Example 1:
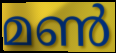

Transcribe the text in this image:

മൺ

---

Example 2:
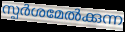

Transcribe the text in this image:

സ്പർശമേൽക്കുന്ന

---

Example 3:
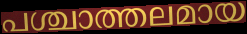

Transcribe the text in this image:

പശ്ചാത്തലമായ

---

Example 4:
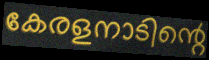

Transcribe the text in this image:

കേരളനാടിന്റെ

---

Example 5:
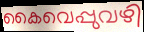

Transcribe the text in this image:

കൈവെപ്പുവഴി